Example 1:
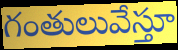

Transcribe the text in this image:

గంతులువేస్తూ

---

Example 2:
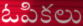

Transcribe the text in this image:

ఓపికలు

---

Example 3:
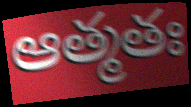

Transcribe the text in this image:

ఆత్మతః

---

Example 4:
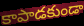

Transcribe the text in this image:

కాపాడకుండా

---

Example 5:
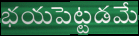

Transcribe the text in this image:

భయపెట్టడమే